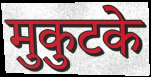
मुकुटके